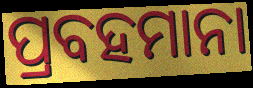
ପ୍ରବହମାନା